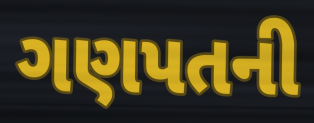
ગણપતની